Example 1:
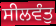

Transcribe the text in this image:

ਸੀਲਵੰਤੁ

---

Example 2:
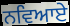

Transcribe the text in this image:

ਨਵਿਆਏ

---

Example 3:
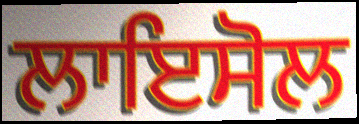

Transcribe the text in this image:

ਲਾਇਸੋਲ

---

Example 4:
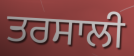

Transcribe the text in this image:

ਤਰਸਾਲੀ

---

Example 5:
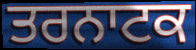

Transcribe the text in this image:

ਤਰਨਾਟਕ